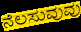
ನೆಲಸುವುವು